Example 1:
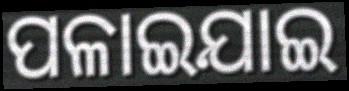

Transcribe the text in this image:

ପଳାଇଯାଇ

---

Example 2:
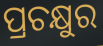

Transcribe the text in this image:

ପ୍ରଚକ୍ଷୁର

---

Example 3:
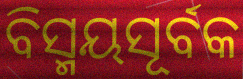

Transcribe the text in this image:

ବିସ୍ମୟସୂର୍ବକ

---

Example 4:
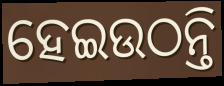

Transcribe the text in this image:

ହେଇଉଠନ୍ତି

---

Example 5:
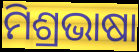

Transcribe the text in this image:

ମିଶ୍ରଭାଷା